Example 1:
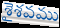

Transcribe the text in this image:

శైశవము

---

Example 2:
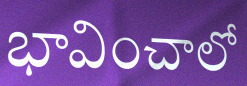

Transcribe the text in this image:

భావించాలో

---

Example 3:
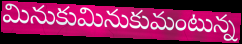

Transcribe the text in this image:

మినుకుమినుకుమంటున్న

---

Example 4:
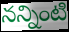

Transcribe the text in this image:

నన్నింటి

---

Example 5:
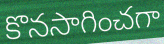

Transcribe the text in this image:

కొనసాగించగా